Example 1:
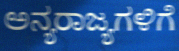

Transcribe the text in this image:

ಅನ್ಯರಾಜ್ಯಗಳಿಗೆ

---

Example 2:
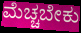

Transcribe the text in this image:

ಮೆಚ್ಚಬೇಕು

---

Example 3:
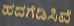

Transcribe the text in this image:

ಹದಗೆಡಿಸಿವೆ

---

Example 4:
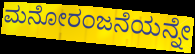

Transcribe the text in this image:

ಮನೋರಂಜನೆಯನ್ನೇ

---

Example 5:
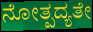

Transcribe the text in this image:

ನೋತ್ಪದ್ಯತೇ